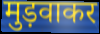
मुड़वाकर